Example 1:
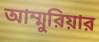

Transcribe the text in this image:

আম্মুরিয়ার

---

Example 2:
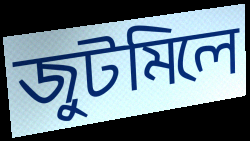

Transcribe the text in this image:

জুটমিলে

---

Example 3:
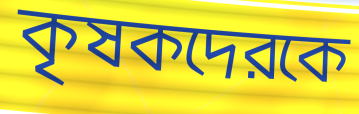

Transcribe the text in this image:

কৃষকদেরকে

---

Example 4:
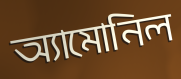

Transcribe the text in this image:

অ্যামোনিল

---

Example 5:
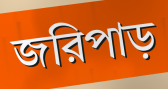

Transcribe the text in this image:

জরিপাড়